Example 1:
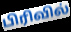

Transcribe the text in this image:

பிரிவில்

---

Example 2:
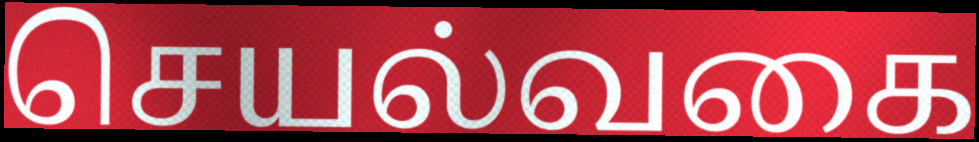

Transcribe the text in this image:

செயல்வகை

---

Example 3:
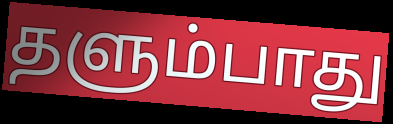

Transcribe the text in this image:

தளும்பாது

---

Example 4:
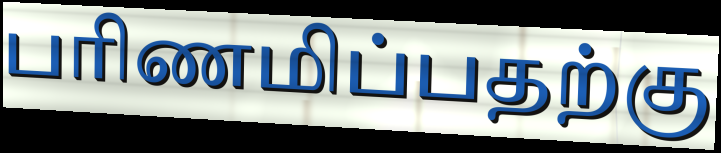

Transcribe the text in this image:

பரிணமிப்பதற்கு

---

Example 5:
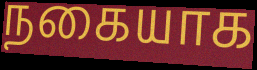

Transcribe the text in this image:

நகையாக